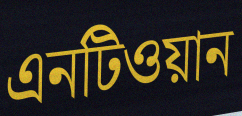
এনটিওয়ান